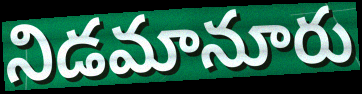
నిడమానూరు